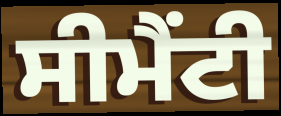
ਸੀਮੈਂਟੀ